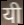
यी